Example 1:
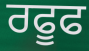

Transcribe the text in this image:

ਰਫੂਫ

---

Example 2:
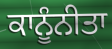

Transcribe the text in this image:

ਕਾਨੂੰਨੀਤਾ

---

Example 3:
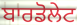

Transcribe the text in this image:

ਬਾਰਡੋਲੇਟ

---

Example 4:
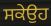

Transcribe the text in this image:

ਸਕੇਉਹ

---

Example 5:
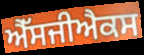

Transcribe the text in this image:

ਐੱਸਜੀਐਕਸ